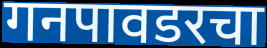
गनपावडरचा